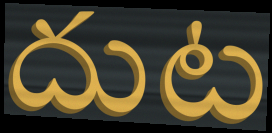
దుట